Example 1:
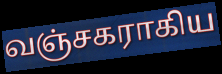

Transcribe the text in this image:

வஞ்சகராகிய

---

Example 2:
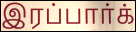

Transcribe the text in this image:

இரப்பார்க்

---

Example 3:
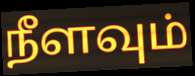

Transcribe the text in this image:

நீளவும்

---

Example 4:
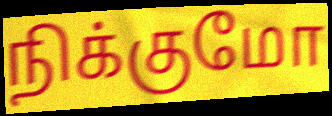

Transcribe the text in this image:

நிக்குமோ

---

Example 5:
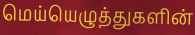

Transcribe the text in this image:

மெய்யெழுத்துகளின்